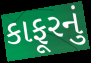
કાફૂરનું